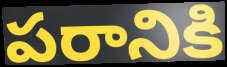
పరానికి